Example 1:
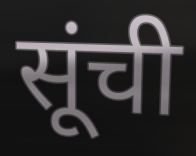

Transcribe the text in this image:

सूंची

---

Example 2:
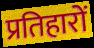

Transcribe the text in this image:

प्रतिहारों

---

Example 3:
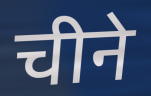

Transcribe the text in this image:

चीने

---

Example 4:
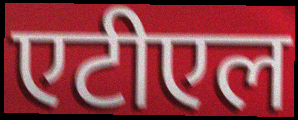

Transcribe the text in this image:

एटीएल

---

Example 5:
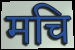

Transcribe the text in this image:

मचि